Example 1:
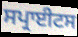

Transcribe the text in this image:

ਸਪ੍ਰਾਈਟਸ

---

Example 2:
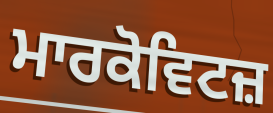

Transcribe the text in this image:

ਮਾਰਕੋਵਿਟਜ਼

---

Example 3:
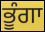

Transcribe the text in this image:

ਭੂੰਗਾ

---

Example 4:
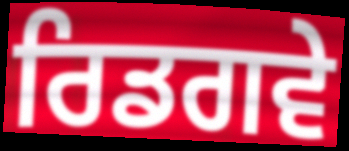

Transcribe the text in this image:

ਰਿਡਗਵੇ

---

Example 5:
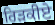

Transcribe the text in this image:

ਰਿੜਕੀਏ